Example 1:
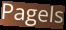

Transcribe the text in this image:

Pagels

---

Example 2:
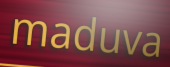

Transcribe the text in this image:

maduva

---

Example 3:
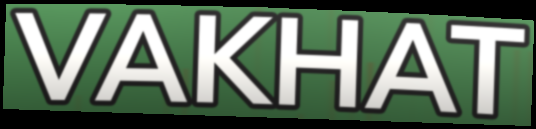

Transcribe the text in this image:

VAKHAT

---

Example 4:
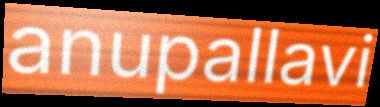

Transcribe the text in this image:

anupallavi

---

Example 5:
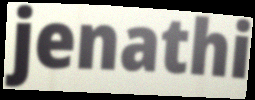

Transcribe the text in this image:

jenathi